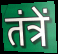
तंत्रें